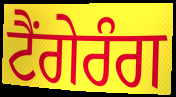
ਟੈਂਗੇਰੰਗ